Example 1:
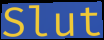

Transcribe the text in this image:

Slut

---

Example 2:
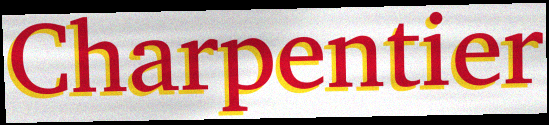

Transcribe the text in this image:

Charpentier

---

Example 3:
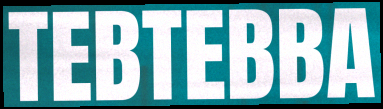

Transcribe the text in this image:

TEBTEBBA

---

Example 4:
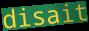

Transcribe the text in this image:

disait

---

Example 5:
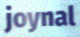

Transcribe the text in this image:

joynal